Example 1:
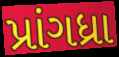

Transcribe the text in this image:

પ્રાંગધ્રા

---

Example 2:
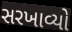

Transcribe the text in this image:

સરખાવ્યો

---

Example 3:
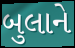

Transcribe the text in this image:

બુલાને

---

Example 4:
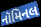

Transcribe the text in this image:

નૉમિનલ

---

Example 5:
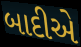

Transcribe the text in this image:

બાદીએ